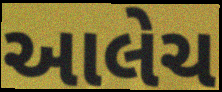
આલેચ